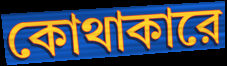
কোথাকারে